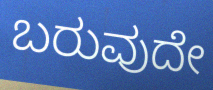
ಬರುವುದೇ